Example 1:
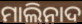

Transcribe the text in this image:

ମାଲିନାଦ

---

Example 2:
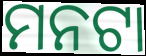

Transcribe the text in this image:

ମନଟା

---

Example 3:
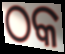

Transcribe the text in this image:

ଠକ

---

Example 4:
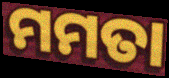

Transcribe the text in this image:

ମମତା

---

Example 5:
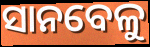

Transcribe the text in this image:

ସାନବେଳୁ